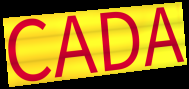
CADA